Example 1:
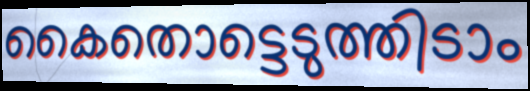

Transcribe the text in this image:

കൈതൊട്ടെടുത്തിടാം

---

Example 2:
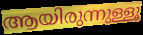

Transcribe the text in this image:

ആയിരുന്നുള്ളൂ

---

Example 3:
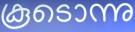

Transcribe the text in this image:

കൂടൊന്നു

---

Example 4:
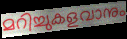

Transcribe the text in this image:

മറിച്ചുകളവാനും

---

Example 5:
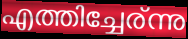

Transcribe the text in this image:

എത്തിച്ചേര്ന്നു